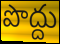
పొద్దు